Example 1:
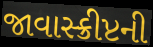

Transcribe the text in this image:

જાવાસ્ક્રીપ્ટની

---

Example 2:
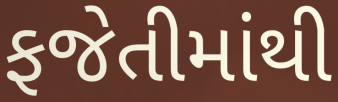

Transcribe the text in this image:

ફજેતીમાંથી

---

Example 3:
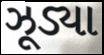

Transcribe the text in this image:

ઝૂડ્યા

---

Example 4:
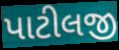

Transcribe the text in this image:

પાટીલજી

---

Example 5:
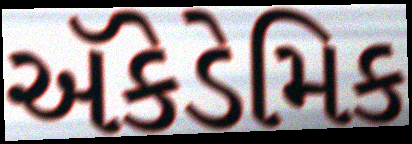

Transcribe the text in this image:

ઍકેડેમિક